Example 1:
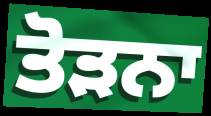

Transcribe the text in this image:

ਤੋੜਨਾ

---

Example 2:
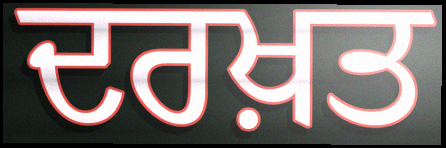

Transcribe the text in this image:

ਦਰਖ਼ਤ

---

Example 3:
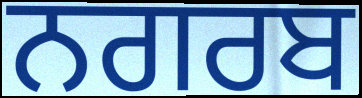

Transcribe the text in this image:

ਨਗਰਬ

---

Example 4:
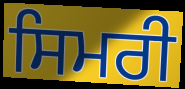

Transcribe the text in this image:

ਸਿਮਰੀ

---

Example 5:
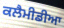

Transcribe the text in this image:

ਕਲੈਮੀਡੀਆ